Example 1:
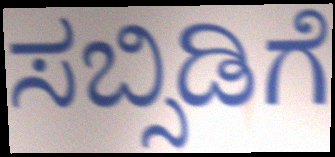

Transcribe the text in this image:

ಸಬ್ಸಿಡಿಗೆ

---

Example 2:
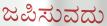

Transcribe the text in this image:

ಜಪಿಸುವದು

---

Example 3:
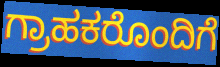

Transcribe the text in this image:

ಗ್ರಾಹಕರೊಂದಿಗೆ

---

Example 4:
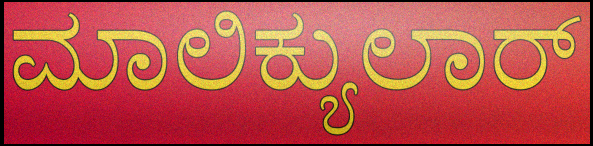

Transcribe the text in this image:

ಮಾಲಿಕ್ಯುಲಾರ್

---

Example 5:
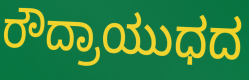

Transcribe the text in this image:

ರೌದ್ರಾಯುಧದ